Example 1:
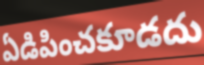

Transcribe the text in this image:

ఏడిపించకూడదు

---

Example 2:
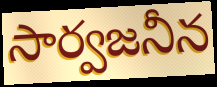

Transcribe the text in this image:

సార్వజనీన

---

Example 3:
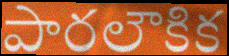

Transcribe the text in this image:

పారలౌకిక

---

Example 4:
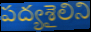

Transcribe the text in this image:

పద్యశైలిని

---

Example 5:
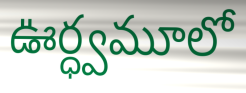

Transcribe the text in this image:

ఊర్ధ్వమూలో